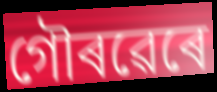
গৌৰৱেৰে